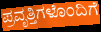
ಪ್ರವೃತ್ತಿಗಳೊಂದಿಗೆ